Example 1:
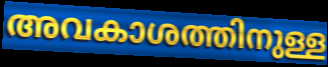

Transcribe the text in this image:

അവകാശത്തിനുള്ള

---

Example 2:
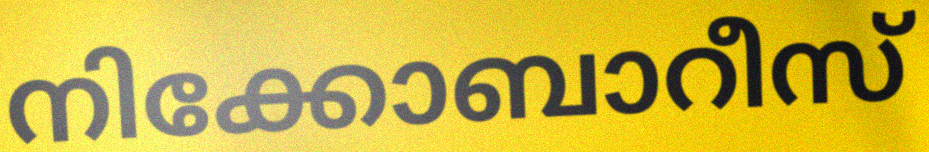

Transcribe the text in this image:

നിക്കോബാറീസ്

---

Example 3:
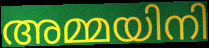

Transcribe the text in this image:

അമ്മയിനി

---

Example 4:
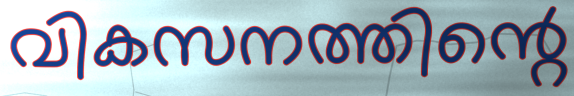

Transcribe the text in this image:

വികസനത്തിന്റെ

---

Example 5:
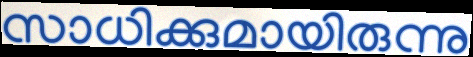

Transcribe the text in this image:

സാധിക്കുമായിരുന്നു